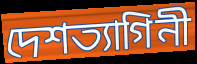
দেশত্যাগিনী